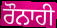
ਰੌਨਾਹੀ